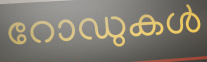
റോഡുകൾ